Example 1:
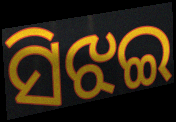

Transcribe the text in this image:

ସିଝଇ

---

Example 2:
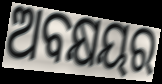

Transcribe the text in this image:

ଅବକ୍ଷୟର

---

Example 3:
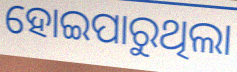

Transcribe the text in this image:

ହୋଇପାରୁଥିଲା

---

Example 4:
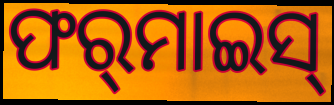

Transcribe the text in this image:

ଫର୍‌ମାଇସ୍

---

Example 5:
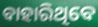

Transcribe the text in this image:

ବାହାରିଥିବେ